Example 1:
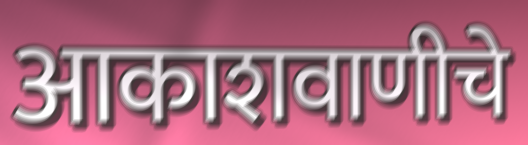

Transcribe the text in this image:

आकाशवाणीचे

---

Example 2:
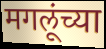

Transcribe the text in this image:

मगलूंच्या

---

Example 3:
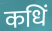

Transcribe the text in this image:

कधिं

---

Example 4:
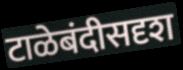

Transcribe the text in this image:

टाळेबंदीसदृश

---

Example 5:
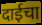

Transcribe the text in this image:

दाईचा